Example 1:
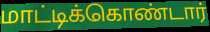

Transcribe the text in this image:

மாட்டிக்கொண்டார்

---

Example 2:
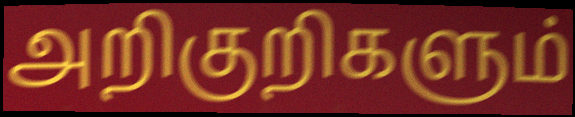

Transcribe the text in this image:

அறிகுறிகளும்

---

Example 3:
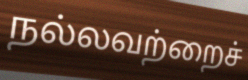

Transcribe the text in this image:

நல்லவற்றைச்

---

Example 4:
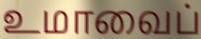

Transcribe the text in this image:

உமாவைப்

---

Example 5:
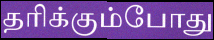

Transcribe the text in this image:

தரிக்கும்போது